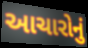
આચારોનું